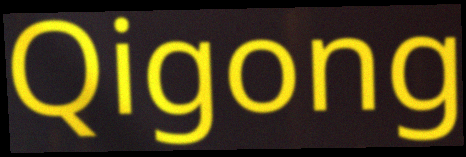
Qigong